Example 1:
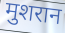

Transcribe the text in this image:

मुशरान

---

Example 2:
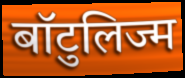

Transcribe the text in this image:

बॉटुलिज्म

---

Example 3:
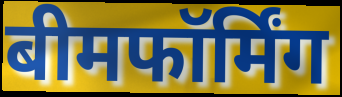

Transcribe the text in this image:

बीमफॉर्मिंग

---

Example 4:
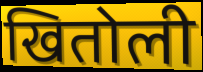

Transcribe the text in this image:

खितोली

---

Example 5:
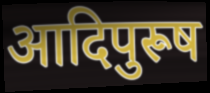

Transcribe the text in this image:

आदिपुरूष